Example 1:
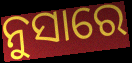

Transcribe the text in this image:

ନୁସାରେ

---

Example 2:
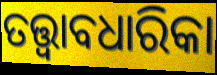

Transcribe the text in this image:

ତତ୍ତ୍ୱାବଧାରିକା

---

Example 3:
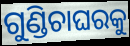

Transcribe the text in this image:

ଗୁଣ୍ଡିଚାଘରକୁ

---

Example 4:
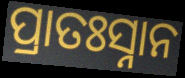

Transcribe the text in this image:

ପ୍ରାତଃସ୍ନାନ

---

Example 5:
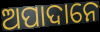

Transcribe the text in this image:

ଅପାଦାନେ